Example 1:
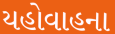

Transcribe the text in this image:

યહોવાહના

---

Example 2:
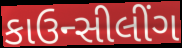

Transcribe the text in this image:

કાઉન્સીલીંગ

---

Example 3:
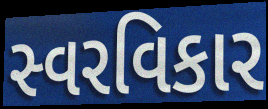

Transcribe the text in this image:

સ્વરવિકાર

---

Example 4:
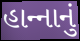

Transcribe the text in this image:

હાન્‍નાનું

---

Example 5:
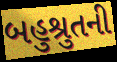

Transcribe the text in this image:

બહુશ્રુતની